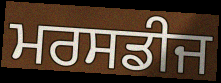
ਮਰਸਡੀਜ